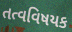
તત્વવિષયક